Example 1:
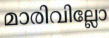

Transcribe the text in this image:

മാരിവില്ലോ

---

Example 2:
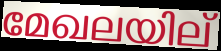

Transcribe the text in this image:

മേഖലയില്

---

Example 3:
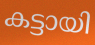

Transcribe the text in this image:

കട്ടായി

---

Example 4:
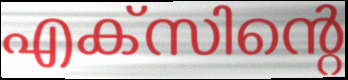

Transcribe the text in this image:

എക്‌സിന്റെ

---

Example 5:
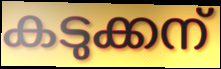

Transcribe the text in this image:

കടുക്കന്